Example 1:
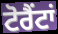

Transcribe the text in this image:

ਟੋਰੈਂਟਾਂ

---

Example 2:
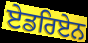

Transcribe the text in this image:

ਏਡਰਿਏਨ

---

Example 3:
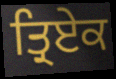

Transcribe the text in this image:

ਤ੍ਰਿਏਕ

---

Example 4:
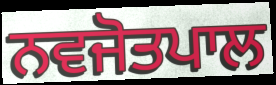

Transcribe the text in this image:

ਨਵਜੋਤਪਾਲ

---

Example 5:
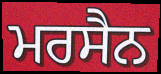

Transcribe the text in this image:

ਮਰਸੈਨ